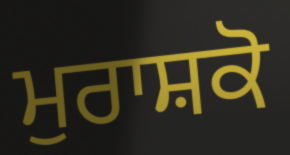
ਮੁਰਾਸ਼ਕੋ